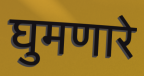
घुमणारे